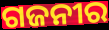
ଗଜନୀର